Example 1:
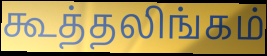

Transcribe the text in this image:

கூத்தலிங்கம்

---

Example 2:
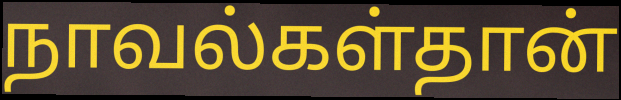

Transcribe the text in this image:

நாவல்கள்தான்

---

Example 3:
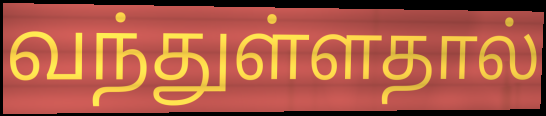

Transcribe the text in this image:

வந்துள்ளதால்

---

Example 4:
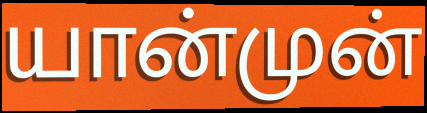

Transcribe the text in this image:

யான்முன்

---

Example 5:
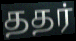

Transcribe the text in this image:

ததர்